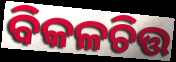
ବିକଳଚିତ୍ତ